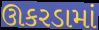
ઊકરડામાં